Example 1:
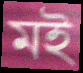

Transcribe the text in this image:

মই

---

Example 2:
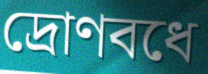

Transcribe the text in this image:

দ্রোণবধে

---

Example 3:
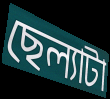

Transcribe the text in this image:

ছেল্যাটা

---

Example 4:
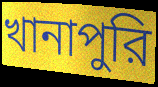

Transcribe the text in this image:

খানাপুরি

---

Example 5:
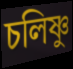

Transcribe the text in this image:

চলিষ্ণু